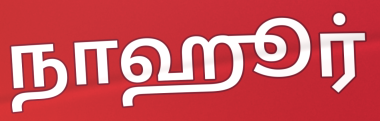
நாஹூர்